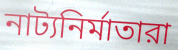
নাট্যনির্মাতারা